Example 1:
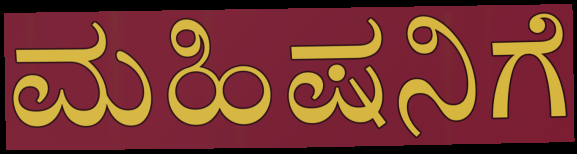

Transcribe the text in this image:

ಮಹಿಷನಿಗೆ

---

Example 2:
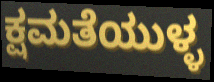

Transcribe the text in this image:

ಕ್ಷಮತೆಯುಳ್ಳ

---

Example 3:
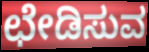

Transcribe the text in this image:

ಛೇಡಿಸುವ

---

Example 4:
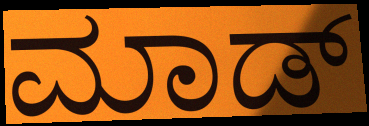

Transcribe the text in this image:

ಮಾಡ್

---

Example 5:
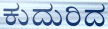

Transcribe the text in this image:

ಕುದುರಿದ